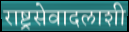
राष्ट्रसेवादलाशी